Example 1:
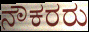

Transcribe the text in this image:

ನೌಕರರು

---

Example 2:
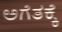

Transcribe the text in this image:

ಅಗೆತಕ್ಕೆ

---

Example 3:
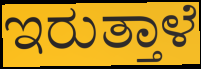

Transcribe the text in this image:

ಇರುತ್ತಾಳೆ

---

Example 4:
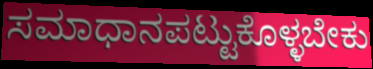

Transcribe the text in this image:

ಸಮಾಧಾನಪಟ್ಟುಕೊಳ್ಳಬೇಕು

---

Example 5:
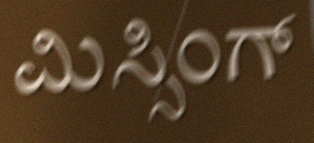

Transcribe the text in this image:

ಮಿಸ್ಸಿಂಗ್